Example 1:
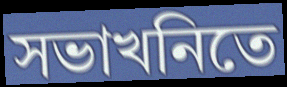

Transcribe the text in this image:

সভাখনিতে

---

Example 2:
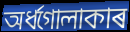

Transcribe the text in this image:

অৰ্ধগোলাকাৰ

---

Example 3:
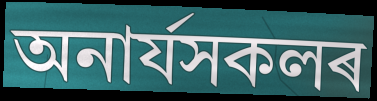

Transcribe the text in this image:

অনাৰ্যসকলৰ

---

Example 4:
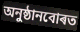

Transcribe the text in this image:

অনুষ্ঠানবোৰত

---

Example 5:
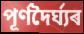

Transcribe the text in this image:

পূৰ্ণদৈৰ্ঘ্যৰ